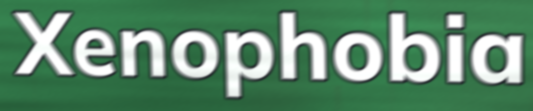
Xenophobia